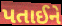
પતાઈને